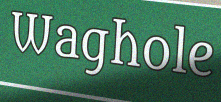
Waghole